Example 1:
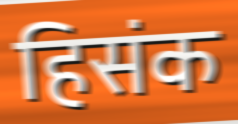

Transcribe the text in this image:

हिसंक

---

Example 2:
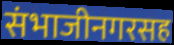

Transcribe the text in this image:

संभाजीनगरसह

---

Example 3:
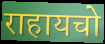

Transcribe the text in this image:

राहायचो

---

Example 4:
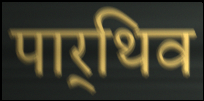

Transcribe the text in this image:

पार्थिव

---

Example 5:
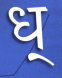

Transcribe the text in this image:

ध्